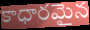
కాధారమైన